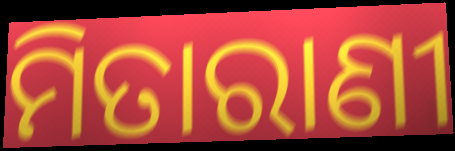
ମିତାରାଣୀ